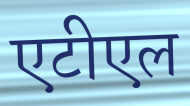
एटीएल